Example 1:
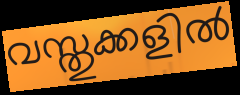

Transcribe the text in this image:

വസ്തുക്കളിൽ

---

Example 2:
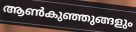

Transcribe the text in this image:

ആൺകുഞ്ഞുങ്ങളും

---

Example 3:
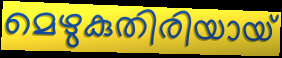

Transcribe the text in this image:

മെഴുകുതിരിയായ്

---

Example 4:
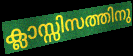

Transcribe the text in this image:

ക്ലാസ്സിസത്തിനു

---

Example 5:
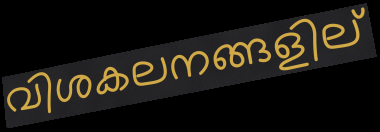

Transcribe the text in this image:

വിശകലനങ്ങളില്